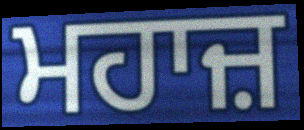
ਮਹਾਜ਼